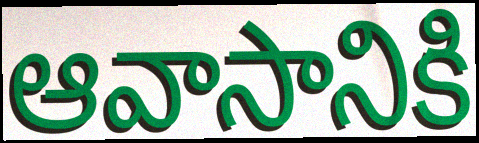
ఆవాసానికి